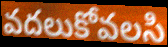
వదలుకోవలసి